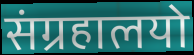
संग्रहालयो